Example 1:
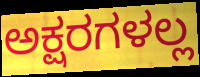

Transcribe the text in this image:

ಅಕ್ಷರಗಳಲ್ಲ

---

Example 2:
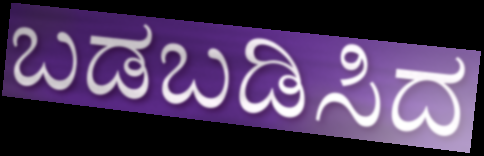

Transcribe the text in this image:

ಬಡಬಡಿಸಿದ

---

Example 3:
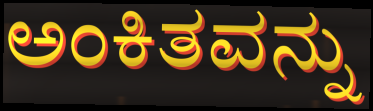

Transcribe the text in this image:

ಅಂಕಿತವನ್ನು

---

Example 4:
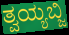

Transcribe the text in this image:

ತ್ವಯ್ಯಬ್ಜಿ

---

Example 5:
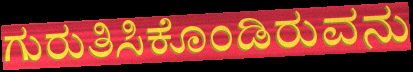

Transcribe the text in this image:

ಗುರುತಿಸಿಕೊಂಡಿರುವನು